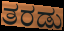
ತರಡು